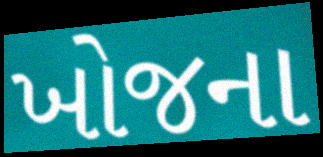
ખોજના